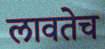
लावतेच